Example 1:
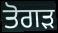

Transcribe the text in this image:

ਤੋਗੜ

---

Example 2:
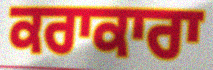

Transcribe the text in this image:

ਕਰਾਕਾਰਾ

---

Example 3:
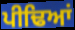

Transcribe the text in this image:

ਪੀਢਿਆਂ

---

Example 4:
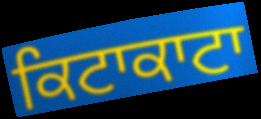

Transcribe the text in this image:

ਕਿਟਾਕਾਟਾ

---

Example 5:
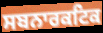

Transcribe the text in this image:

ਸਬਨਾਰਕਟਿਕ